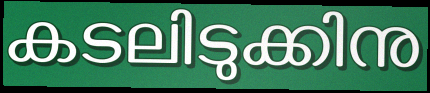
കടലിടുക്കിനു